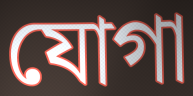
যোগা